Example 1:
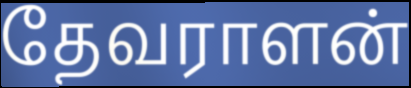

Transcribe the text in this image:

தேவராளன்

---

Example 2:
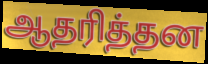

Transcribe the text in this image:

ஆதரித்தன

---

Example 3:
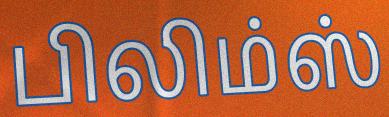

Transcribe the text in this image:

பிலிம்ஸ்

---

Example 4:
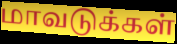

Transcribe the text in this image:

மாவடுக்கள்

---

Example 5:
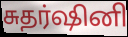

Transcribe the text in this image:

சுதர்ஷினி